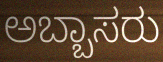
ಅಬ್ಬಾಸರು